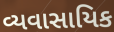
વ્યવાસાયિક